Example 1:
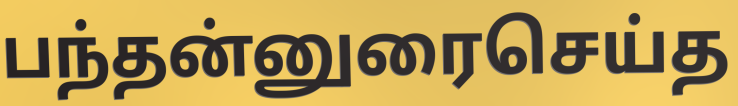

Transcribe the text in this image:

பந்தன்னுரைசெய்த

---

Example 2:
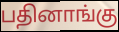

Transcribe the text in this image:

பதினாங்கு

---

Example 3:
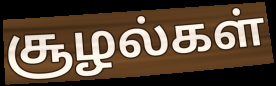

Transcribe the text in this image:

சூழல்கள்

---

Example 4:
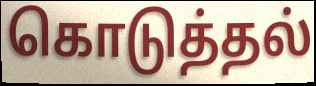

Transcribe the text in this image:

கொடுத்தல்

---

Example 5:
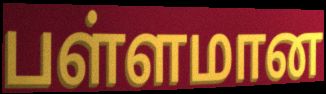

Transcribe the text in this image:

பள்ளமான